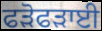
ਫੜੋਫੜਾਈ